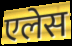
एलेस